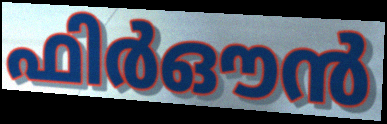
ഫിർഔൻ